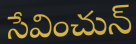
సేవించున్